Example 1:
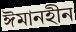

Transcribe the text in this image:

ঈমানহীন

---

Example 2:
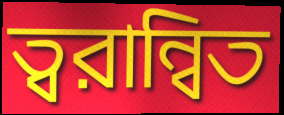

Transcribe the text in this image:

ত্বরান্বিত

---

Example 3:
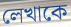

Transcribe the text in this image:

লেখাকে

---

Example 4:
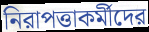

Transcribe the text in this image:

নিরাপত্তাকর্মীদের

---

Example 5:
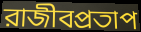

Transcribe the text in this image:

রাজীবপ্রতাপ